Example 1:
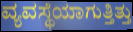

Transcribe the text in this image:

ವ್ಯವಸ್ಥೆಯಾಗುತ್ತಿತ್ತು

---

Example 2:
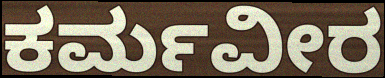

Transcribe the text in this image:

ಕರ್ಮವೀರ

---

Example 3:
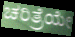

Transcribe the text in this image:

ಚರಿತ್ರೆಯೇ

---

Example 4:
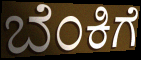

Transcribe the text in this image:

ಬೆಂಕಿಗೆ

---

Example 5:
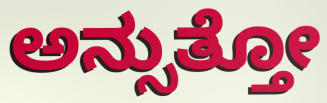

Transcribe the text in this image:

ಅನ್ಸುತ್ತೋ